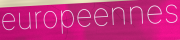
europeennes